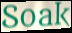
Soak